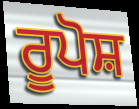
ਰੂਪੋਸ਼